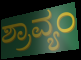
ಶ್ರಾವ್ಯಂ